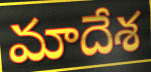
మాదేశ